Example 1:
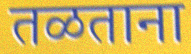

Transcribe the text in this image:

तळताना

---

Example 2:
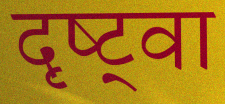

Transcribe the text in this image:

दृष्ट्‍वा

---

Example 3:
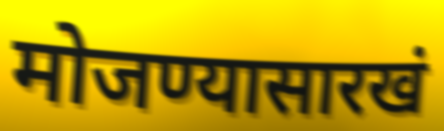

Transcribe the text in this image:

मोजण्यासारखं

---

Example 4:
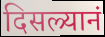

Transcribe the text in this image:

दिसल्यानं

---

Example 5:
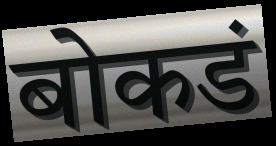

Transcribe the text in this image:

बोकडं